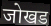
जोखड